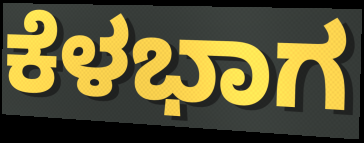
ಕೆಳಭಾಗ